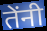
तेंनी